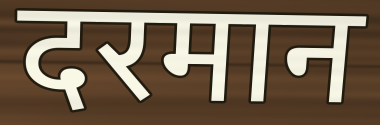
दरमान